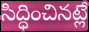
సిద్ధించినట్లే